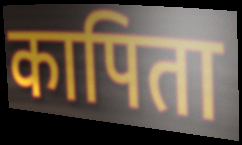
कापिता